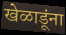
खेळाडूंना